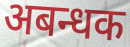
अबन्धक